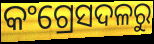
କଂଗ୍ରେସଦଳରୁ